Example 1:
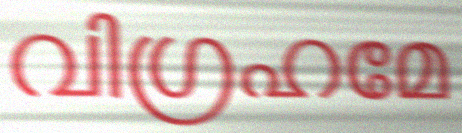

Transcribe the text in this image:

വിഗ്രഹമേ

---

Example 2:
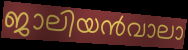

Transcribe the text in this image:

ജാലിയൻവാലാ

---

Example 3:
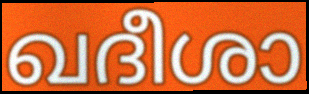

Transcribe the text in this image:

ഖദീശാ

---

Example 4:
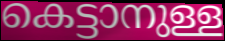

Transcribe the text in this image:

കെട്ടാനുള്ള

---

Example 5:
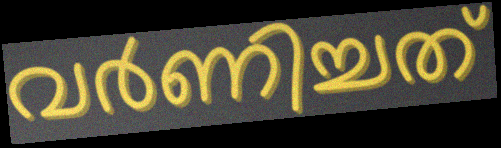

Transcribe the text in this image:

വർണിച്ചത്